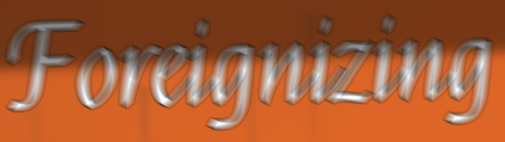
Foreignizing